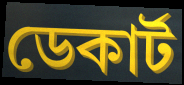
ডেকাৰ্ট